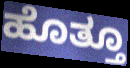
ಹೊತ್ತೂ